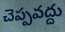
చెప్పవద్దు